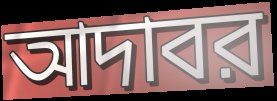
আদাবর